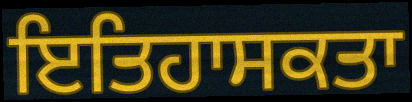
ਇਤਿਹਾਸਕਤਾ